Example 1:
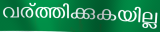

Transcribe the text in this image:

വര്ത്തിക്കുകയില്ല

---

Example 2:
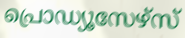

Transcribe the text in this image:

പ്രൊഡ്യൂസേഴ്സ്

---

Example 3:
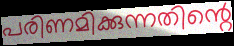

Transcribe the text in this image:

പരിണമിക്കുന്നതിന്റെ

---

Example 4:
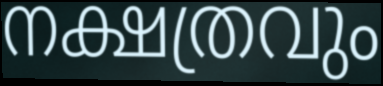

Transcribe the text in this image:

നക്ഷത്രവും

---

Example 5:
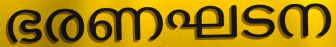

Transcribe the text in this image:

ഭരണഘടന